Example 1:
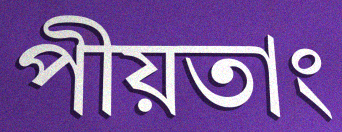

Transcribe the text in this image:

পীয়তাং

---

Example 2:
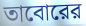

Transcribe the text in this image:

তাবোরের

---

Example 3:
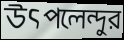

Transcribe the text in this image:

উৎপলেন্দুর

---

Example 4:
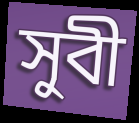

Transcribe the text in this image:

সুবী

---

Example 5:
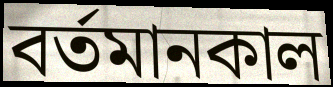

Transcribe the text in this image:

বর্তমানকাল